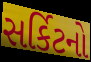
સર્કિટનો